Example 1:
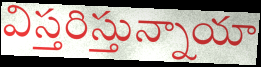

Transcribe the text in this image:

విస్తరిస్తున్నాయా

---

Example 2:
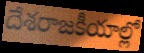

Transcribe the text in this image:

దేశరాజకీయాల్లో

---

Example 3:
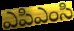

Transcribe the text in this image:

ఎపిఎంసి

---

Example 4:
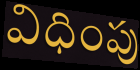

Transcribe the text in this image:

విధింపు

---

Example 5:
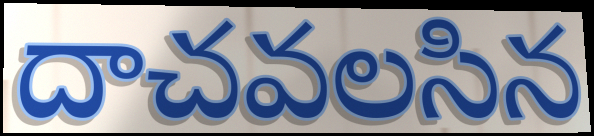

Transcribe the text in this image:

దాచవలసిన